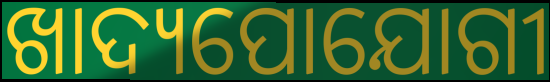
ଖାଦ୍ୟପୋଯୋଗୀ